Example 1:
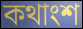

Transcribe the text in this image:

কথাংশ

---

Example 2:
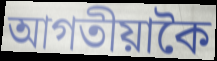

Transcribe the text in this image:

আগতীয়াকৈ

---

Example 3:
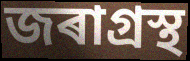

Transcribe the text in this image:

জৰাগ্ৰস্থ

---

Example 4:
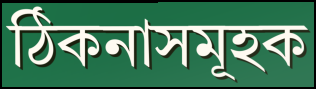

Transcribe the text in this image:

ঠিকনাসমূহক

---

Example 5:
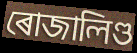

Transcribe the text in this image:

ৰোজালিণ্ড